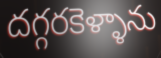
దగ్గరకెళ్ళాను